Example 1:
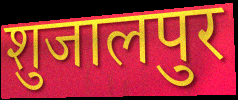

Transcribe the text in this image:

शुजालपुर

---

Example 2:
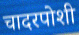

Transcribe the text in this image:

चादरपोशी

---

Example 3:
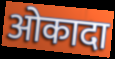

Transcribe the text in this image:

ओकादा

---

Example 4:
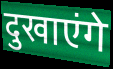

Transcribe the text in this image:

दुखाएंगे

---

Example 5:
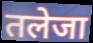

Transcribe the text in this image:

तलेजा